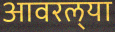
आवरल्या